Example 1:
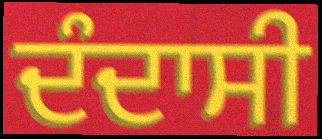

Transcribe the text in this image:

ਦੰਦਾਸੀ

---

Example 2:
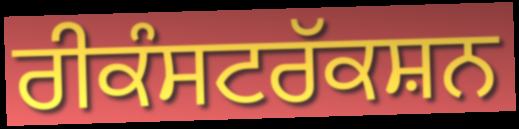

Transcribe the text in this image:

ਰੀਕੰਸਟਰੱਕਸ਼ਨ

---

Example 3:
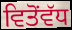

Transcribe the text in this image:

ਵਿਤੋਂਵੱਧ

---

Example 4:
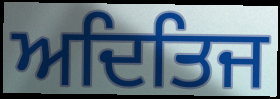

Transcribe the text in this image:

ਅਦਿਤਿਜ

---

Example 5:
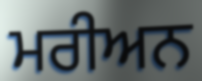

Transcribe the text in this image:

ਮਰੀਅਨ